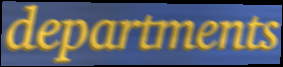
departments